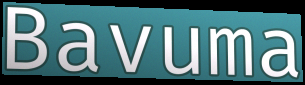
Bavuma